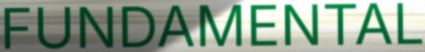
FUNDAMENTAL